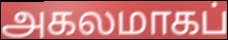
அகலமாகப்